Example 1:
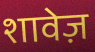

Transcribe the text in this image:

शावेज़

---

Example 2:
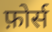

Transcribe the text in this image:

फ़ोर्स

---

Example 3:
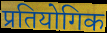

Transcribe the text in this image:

प्रतियोगिक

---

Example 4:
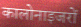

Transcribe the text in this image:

कालोनाइजरों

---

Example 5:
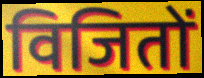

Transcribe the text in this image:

विजितों